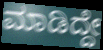
ಮಾಡಿದ್ದೇ